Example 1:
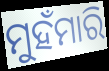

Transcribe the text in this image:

ମୁହଁମାରି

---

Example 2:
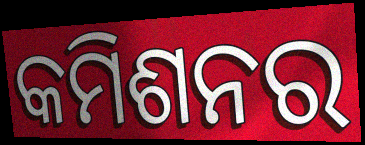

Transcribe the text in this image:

କମିଶନର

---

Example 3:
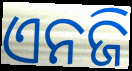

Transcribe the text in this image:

ଏନଜି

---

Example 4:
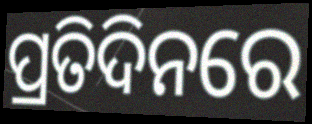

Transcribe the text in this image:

ପ୍ରତିଦିନରେ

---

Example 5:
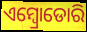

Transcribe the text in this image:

ଏମ୍ବ୍ରୋଡୋରି